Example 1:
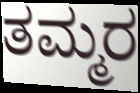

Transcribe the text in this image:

ತಮ್ಮರ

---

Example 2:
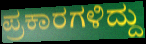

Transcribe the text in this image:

ಪ್ರಕಾರಗಳಿದ್ದು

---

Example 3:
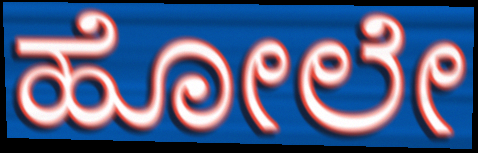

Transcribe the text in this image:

ಹೋಲೇ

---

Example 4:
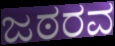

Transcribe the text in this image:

ಜಠರವ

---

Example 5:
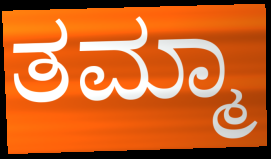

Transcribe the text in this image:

ತಮ್ಮಾ